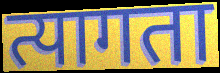
त्यागता